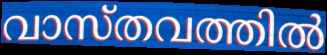
വാസ്തവത്തിൽ